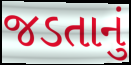
જડતાનું